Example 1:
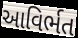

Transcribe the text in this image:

આવિર્ભત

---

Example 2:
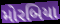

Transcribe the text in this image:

મોરબિયા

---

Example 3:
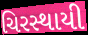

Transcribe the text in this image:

ચિરસ્થાયી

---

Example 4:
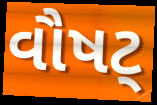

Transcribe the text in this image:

વૌષટ્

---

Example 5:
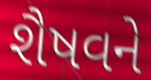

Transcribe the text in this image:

શૈષવને